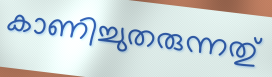
കാണിച്ചുതരുന്നതു്